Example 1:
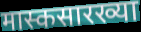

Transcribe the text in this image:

मास्कसारख्या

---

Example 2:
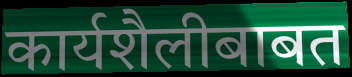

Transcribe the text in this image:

कार्यशैलीबाबत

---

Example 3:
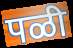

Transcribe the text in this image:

पळी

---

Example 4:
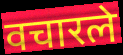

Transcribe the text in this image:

वचारले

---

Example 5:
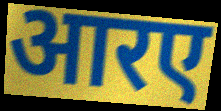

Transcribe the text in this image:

आरए